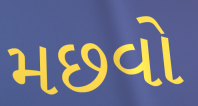
મછવો